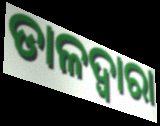
ଡାଳଦ୍ୱାରା